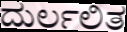
ದುರ್ಲಲಿತ